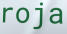
roja